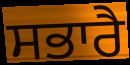
ਸਭਾਰੈ